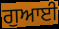
ਗੁਆਈ